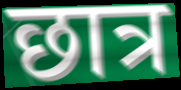
छात्र